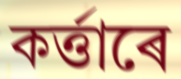
কৰ্ত্তাৰে